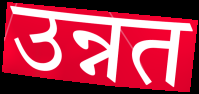
उन्नत